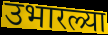
उभारल्या